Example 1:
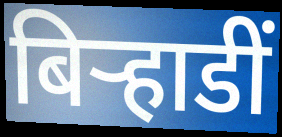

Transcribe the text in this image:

बिर्‍हाडीं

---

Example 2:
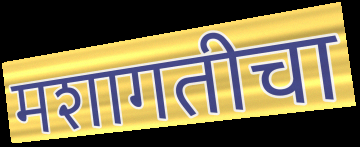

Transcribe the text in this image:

मशागतीचा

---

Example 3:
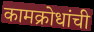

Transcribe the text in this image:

कामक्रोधांची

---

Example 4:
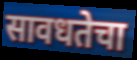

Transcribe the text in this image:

सावधतेचा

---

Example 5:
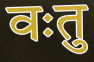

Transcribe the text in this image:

वःतु